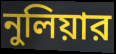
নুলিয়ার